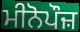
ਮੀਨੋਪੌਜ਼